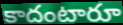
కాదంటారూ